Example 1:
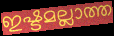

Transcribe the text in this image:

ഇഷ്ടമല്ലാത്ത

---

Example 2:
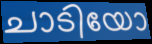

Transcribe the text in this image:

ചാടിയോ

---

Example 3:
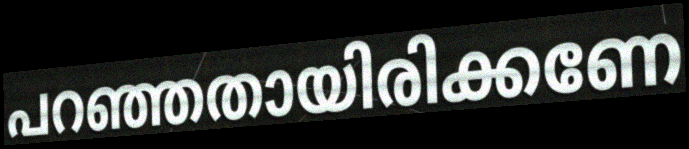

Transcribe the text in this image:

പറഞ്ഞതായിരിക്കണേ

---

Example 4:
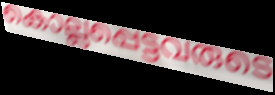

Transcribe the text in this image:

കൊല്ലപ്പെട്ടവരുടെ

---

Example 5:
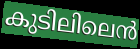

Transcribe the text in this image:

കുടിലിലെൻ